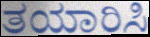
ತಯಾರಿಸಿ